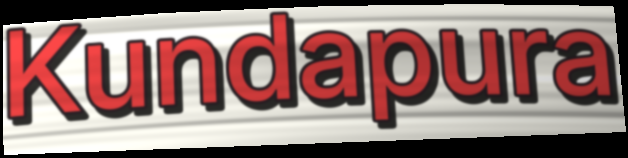
Kundapura